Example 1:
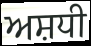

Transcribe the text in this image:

ਅਸ਼ਧੀ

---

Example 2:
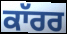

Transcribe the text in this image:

ਕਾੱਰਰ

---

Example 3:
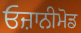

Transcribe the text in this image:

ਓਜ਼ਾਨੀਮੋਡ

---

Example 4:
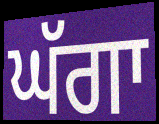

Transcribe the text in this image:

ਘੱਗਾ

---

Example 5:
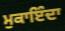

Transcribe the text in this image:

ਮੁਕਾਇੰਦਾ